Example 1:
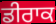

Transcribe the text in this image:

ਡੀਰਾਕ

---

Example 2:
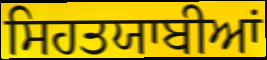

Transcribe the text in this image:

ਸਿਹਤਯਾਬੀਆਂ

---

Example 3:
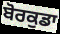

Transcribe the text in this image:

ਬੋਰਕੁਡਾ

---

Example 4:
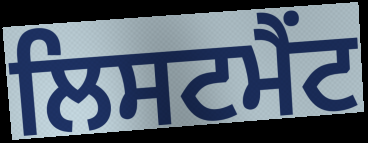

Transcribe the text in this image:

ਲਿਸਟਮੈਂਟ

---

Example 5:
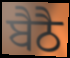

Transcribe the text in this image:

ਬੈਠੈ